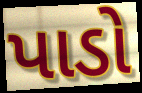
પાડો